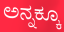
ಅನ್ನಕ್ಕೂ